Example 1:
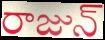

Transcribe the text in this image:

రాజున్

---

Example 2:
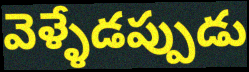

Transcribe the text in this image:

వెళ్ళేడప్పుడు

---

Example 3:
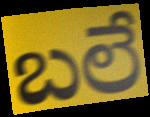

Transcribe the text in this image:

బలే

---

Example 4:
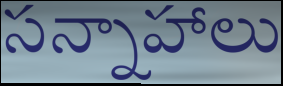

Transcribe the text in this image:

సన్నాహాలు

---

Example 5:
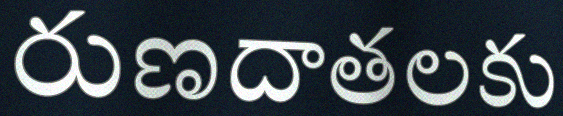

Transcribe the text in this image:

రుణదాతలకు